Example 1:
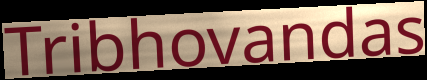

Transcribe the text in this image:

Tribhovandas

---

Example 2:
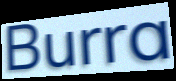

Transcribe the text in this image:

Burra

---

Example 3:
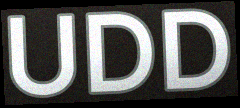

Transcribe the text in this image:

UDD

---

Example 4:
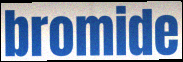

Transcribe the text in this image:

bromide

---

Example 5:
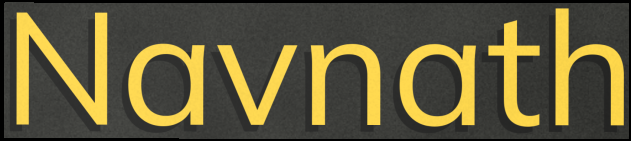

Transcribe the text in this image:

Navnath